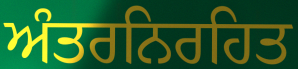
ਅੰਤਰਨਿਰਹਿਤ